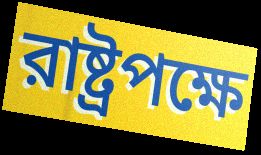
রাষ্ট্রপক্ষে